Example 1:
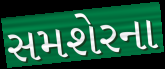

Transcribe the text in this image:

સમશેરના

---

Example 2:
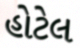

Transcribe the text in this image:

હોટેલ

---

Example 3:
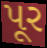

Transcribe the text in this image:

પૂર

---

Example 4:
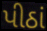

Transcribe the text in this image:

પીઠાં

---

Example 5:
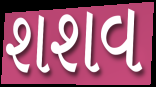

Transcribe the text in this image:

શશવ